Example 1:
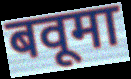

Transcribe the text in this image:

बवूमा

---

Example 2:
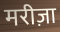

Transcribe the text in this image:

मरीज़ा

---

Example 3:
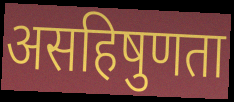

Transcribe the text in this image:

असहिषुणता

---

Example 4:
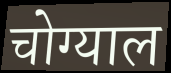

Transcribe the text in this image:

चोग्याल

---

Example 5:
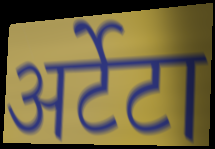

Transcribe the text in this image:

अर्टेटा